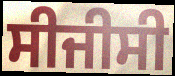
ਸੀਜੀਸੀ